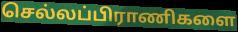
செல்லப்பிராணிகளை